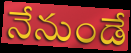
నేనుండే